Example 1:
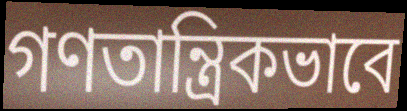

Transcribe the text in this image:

গণতান্ত্রিকভাবে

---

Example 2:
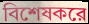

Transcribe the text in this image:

বিশেষকরে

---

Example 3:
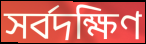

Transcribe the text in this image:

সর্বদক্ষিণ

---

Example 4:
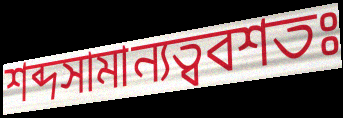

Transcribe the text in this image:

শব্দসামান্যত্ববশতঃ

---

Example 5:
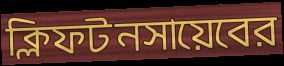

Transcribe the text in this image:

ক্লিফটনসায়েবের